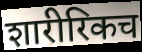
शारीरिकच